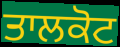
ਤਾਲਕੋਟ